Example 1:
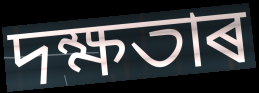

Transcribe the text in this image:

দক্ষতাৰ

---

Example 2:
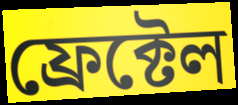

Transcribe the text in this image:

ফ্ৰেক্টেল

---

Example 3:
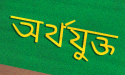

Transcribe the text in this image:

অৰ্থযুক্ত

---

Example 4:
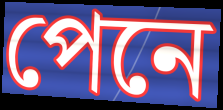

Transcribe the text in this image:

পেনে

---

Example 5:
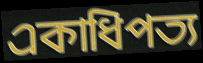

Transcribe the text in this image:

একাধিপত্য